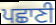
ਪਛਾਣੀ